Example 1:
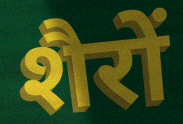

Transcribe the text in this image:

शैरों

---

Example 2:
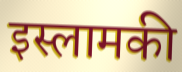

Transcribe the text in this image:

इस्लामकी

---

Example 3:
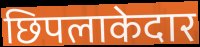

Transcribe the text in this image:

छिपलाकेदार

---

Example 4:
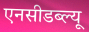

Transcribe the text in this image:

एनसीडब्ल्यू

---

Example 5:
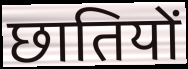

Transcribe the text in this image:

छातियों